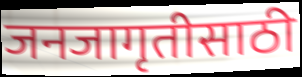
जनजागृतीसाठी